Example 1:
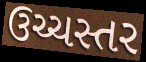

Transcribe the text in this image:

ઉચ્ચસ્તર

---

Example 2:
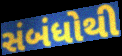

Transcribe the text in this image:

સંબંધોથી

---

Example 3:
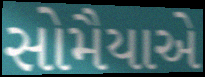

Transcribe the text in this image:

સોમૈયાએ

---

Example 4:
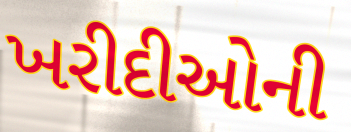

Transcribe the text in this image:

ખરીદીઓની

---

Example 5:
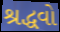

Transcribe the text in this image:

શ્રદ્ધવો